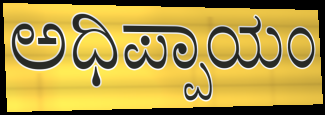
ಅಧಿಪ್ಪಾಯಂ